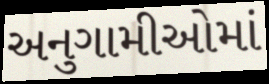
અનુગામીઓમાં